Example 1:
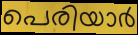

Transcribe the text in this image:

പെരിയാർ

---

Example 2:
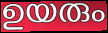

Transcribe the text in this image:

ഉയരും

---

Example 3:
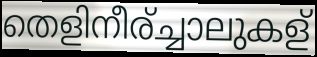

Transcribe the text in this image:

തെളിനീര്ച്ചാലുകള്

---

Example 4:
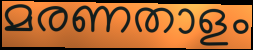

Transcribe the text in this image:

മരണതാളം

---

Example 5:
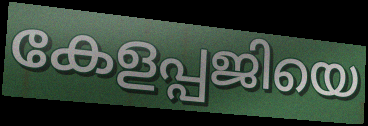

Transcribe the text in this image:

കേളപ്പജിയെ